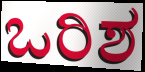
ಒರಿಶ